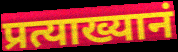
प्रत्याख्यानं